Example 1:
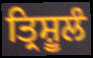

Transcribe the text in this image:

ਤ੍ਰਿਸ਼ੂਲੰ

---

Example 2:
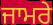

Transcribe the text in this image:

ਜਾਮਰੇ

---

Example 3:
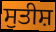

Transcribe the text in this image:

ਸੁਤੀਸ਼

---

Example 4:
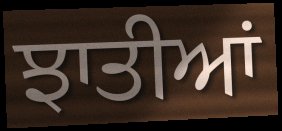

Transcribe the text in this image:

ਝਾਤੀਆਂ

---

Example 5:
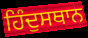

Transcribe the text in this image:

ਹਿੰਦੁਸਥਾਨ